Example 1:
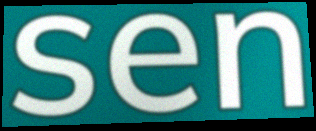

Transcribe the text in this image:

sen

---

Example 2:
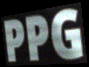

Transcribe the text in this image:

PPG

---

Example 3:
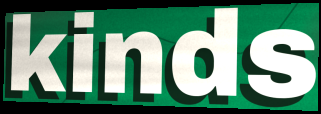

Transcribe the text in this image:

kinds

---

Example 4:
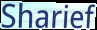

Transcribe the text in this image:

Sharief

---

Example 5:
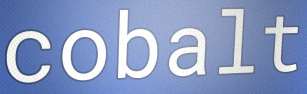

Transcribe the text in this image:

cobalt